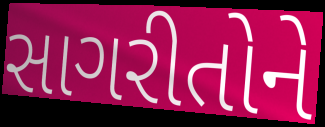
સાગરીતોને